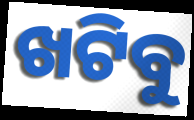
ଖଟିବୁ